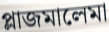
প্লাজমালেমা